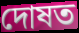
দোষত